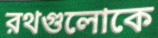
রথগুলোকে